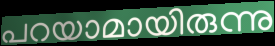
പറയാമായിരുന്നു